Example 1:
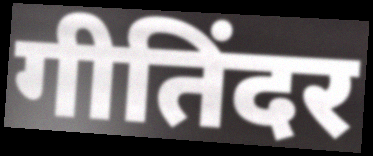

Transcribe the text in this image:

गीतिंदर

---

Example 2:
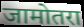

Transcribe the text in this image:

जामोतरा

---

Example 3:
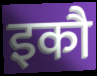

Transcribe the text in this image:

इकौ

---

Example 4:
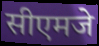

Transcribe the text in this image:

सीएमजे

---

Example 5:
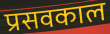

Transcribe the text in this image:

प्रसवकाल